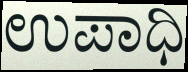
ಉಪಾಧಿ